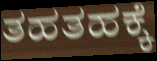
ತಹತಹಕ್ಕೆ